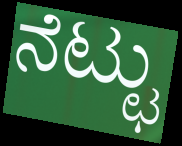
ನೆಟ್ಟು